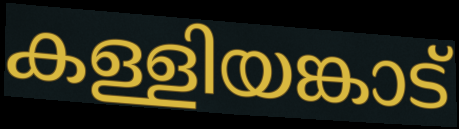
കള്ളിയങ്കാട്